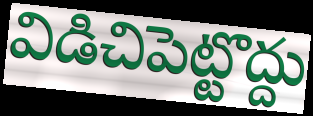
విడిచిపెట్టొద్దు